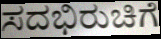
ಸದಭಿರುಚಿಗೆ